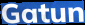
Gatun